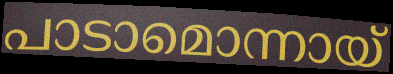
പാടാമൊന്നായ്